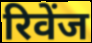
रिवेंज